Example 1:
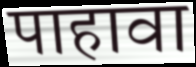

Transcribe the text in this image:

पाहावा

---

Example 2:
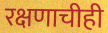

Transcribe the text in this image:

रक्षणाचीही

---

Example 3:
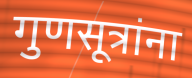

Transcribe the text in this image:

गुणसूत्रांना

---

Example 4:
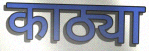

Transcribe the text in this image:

काठ्या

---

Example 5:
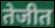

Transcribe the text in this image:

तेजीत